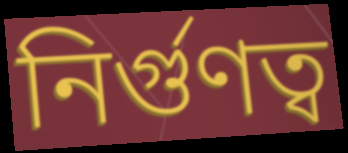
নির্গুণত্ব